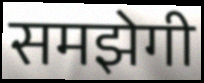
समझेगी